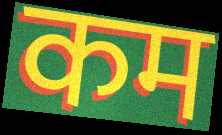
कम